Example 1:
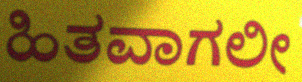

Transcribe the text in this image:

ಹಿತವಾಗಲೀ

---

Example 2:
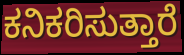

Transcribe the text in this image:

ಕನಿಕರಿಸುತ್ತಾರೆ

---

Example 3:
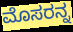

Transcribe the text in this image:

ಮೊಸರನ್ನ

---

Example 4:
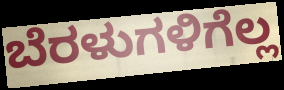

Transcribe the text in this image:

ಬೆರಳುಗಳಿಗೆಲ್ಲ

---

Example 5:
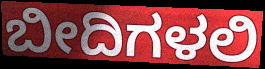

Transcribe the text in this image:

ಬೀದಿಗಳಲಿ